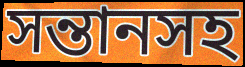
সন্তানসহ